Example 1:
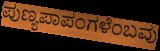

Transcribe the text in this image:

ಪುಣ್ಯಪಾಪಂಗಳೆಂಬವು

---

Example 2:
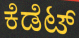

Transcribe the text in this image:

ಕೆಡೆಟ್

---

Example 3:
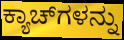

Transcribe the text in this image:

ಕ್ಯಾಚ್‌ಗಳನ್ನು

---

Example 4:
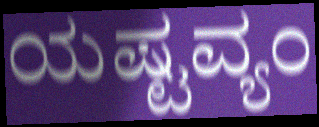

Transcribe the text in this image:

ಯಷ್ಟವ್ಯಂ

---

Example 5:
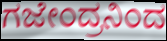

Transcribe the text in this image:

ಗಜೇಂದ್ರನಿಂದ